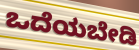
ಒದೆಯಬೇಡಿ